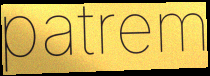
patrem